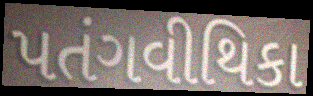
પતંગવીથિકા